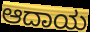
ಆದಾಯ